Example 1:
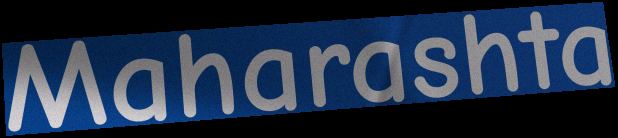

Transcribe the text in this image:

Maharashta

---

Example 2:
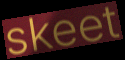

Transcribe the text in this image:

skeet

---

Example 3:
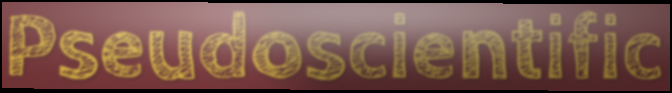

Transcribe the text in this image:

Pseudoscientific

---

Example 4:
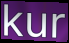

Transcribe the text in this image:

kur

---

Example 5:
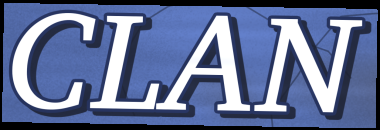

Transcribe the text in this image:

CLAN